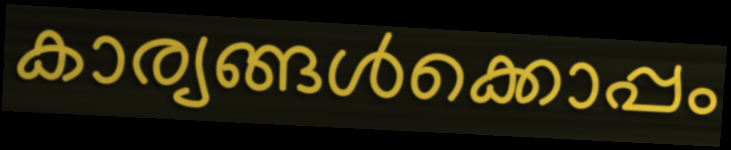
കാര്യങ്ങൾക്കൊപ്പം